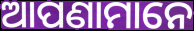
ଆପଣାମାନେ